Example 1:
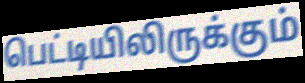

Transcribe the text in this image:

பெட்டியிலிருக்கும்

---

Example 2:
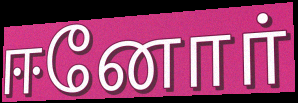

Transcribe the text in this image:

ஈனோர்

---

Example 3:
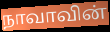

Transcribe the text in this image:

நாவாவின்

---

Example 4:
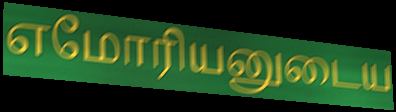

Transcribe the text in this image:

எமோரியனுடைய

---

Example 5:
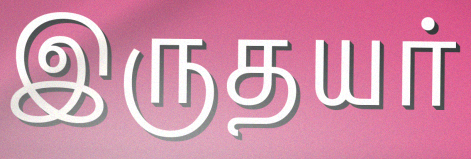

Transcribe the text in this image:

இருதயர்